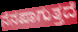
ನೆನಪಾಗುತ್ತದೆ